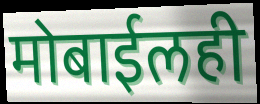
मोबाईलही